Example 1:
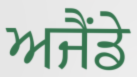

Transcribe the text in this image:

ਅਜੈਂਡੇ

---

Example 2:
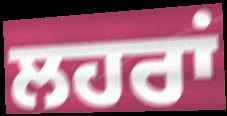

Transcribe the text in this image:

ਲਹਰਾਂ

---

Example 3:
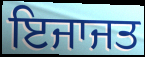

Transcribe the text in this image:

ਇਜਾਜਤ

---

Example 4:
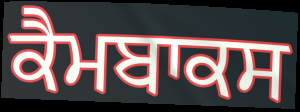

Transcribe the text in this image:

ਕੈਮਬਾਕਸ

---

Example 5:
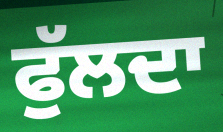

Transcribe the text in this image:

ਫੁੱਲਦਾ